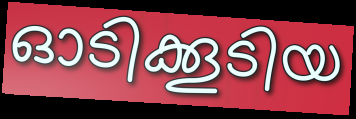
ഓടിക്കൂടിയ